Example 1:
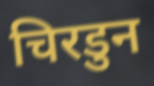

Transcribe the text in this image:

चिरडुन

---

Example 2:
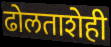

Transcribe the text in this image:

ढोलताशेही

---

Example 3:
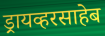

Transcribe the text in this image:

ड्रायव्हरसाहेब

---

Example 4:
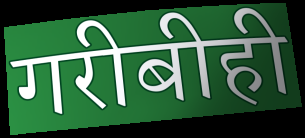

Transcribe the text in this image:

गरीबीही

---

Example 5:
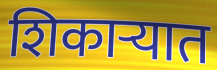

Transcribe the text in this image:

शिकाऱ्यात